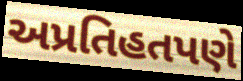
અપ્રતિહતપણે